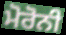
ਮੋਰੋਨੀ